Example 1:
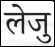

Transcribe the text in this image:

लेजु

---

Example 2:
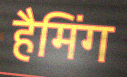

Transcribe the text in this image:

हैमिंग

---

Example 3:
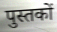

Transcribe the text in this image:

पुस्तकों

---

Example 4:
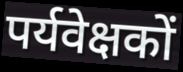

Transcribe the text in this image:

पर्यवेक्षकों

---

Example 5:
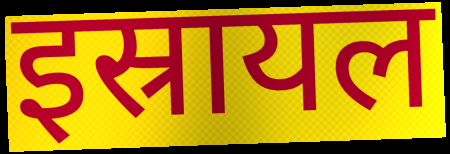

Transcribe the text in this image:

इस्रायल